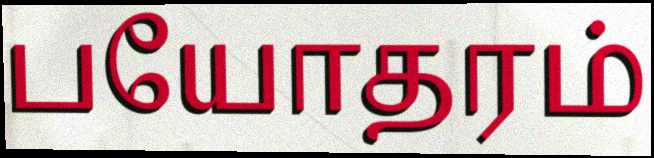
பயோதரம்